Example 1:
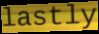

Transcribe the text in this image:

lastly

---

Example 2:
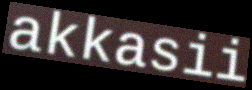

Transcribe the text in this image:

akkasii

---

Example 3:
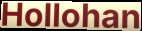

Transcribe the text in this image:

Hollohan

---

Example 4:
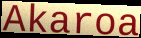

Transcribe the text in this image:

Akaroa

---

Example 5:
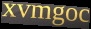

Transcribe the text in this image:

xvmgoc